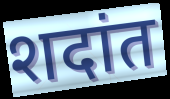
शदांत